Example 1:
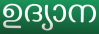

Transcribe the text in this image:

ഉദ്യാന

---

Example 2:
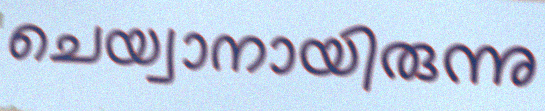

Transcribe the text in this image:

ചെയ്വാനായിരുന്നു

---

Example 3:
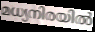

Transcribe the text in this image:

മധ്യനിരയിൽ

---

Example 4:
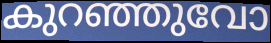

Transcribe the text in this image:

കുറഞ്ഞുവോ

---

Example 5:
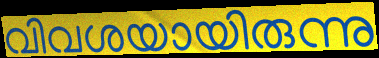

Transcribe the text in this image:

വിവശയായിരുന്നു